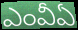
ఎంవీఏ